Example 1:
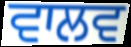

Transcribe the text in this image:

ਵਾਲਵ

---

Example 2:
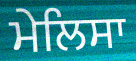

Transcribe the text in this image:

ਮੇਲਿਸਾ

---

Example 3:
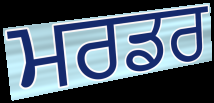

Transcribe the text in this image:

ਮਰਡਰ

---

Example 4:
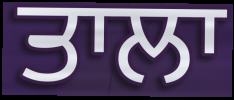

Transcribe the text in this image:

ਤਾਲਾ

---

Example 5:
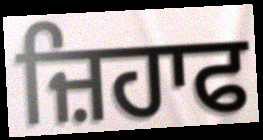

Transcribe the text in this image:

ਜ਼ਿਹਾਫ